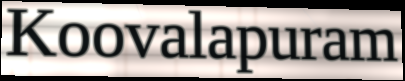
Koovalapuram